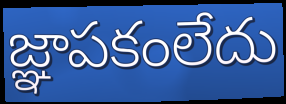
జ్ఞాపకంలేదు